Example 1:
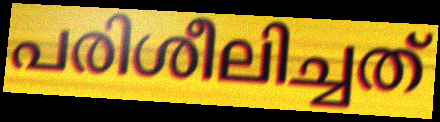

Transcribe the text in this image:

പരിശീലിച്ചത്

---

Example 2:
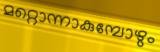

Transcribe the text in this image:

മറ്റൊന്നാകുമ്പോഴും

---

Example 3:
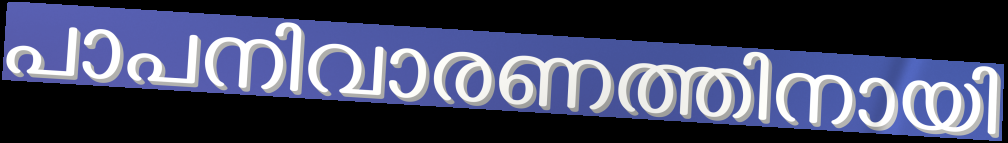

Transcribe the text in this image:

പാപനിവാരണത്തിനായി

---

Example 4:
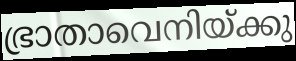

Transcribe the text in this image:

ഭ്രാതാവെനിയ്ക്കു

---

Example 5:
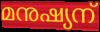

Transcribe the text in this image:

മനുഷ്യന്